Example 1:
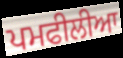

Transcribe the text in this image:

ਪਮਫੀਲੀਆ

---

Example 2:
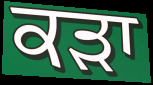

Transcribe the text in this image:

ਕੜਾ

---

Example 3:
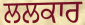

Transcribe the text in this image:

ਲਲਕਾਰ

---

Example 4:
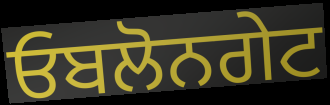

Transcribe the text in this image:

ਓਬਲੋਨਗੇਟ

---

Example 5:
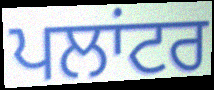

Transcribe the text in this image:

ਪਲਾਂਟਰ